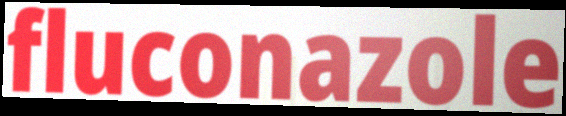
fluconazole